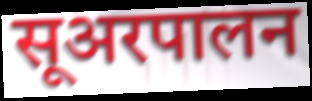
सूअरपालन